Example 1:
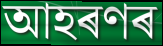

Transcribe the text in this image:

আহৰণৰ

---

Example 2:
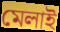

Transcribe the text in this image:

মেলাই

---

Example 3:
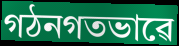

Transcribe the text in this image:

গঠনগতভাৱে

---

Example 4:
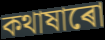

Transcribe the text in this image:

কথাষাৰো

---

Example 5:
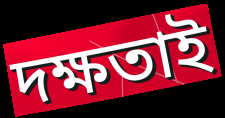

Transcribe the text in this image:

দক্ষতাই